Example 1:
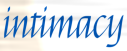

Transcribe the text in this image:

intimacy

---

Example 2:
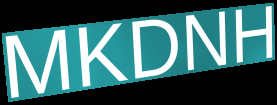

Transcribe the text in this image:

MKDNH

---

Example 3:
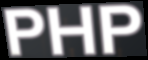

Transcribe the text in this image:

PHP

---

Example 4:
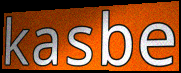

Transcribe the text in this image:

kasbe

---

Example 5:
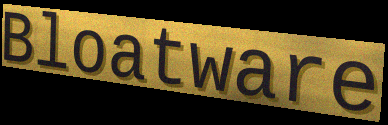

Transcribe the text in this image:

Bloatware